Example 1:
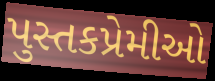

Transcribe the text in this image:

પુસ્તકપ્રેમીઓ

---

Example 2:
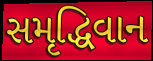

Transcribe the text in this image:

સમૃદ્ધિવાન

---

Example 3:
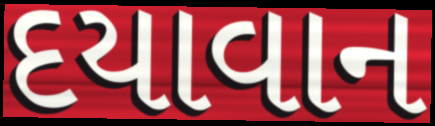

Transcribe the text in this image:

દયાવાન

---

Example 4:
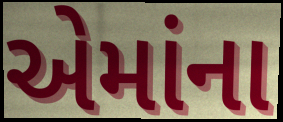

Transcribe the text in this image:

એમાંના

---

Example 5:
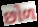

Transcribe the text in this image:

છોળ